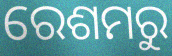
ରେଶମରୁ